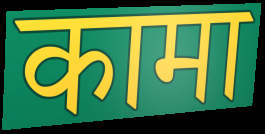
कामा